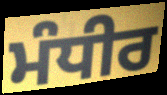
ਮੰਧੀਰ